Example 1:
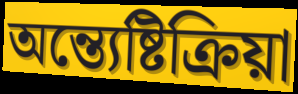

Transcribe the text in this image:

অন্ত্যেষ্টিক্রিয়া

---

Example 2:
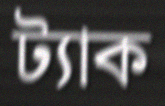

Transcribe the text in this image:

ট্যাক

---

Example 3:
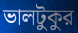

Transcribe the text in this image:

ভালটুকুর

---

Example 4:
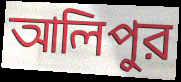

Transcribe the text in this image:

আলিপুর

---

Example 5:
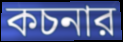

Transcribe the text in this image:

কচনার